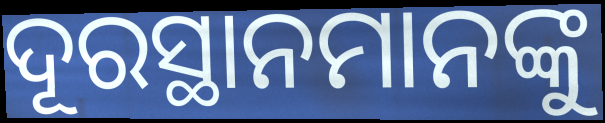
ଦୂରସ୍ଥାନମାନଙ୍କୁ